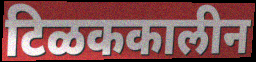
टिळककालीन